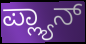
ಪ್ಲ್ಯಾನ್